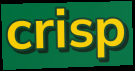
crisp